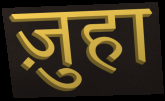
ज़ुहा